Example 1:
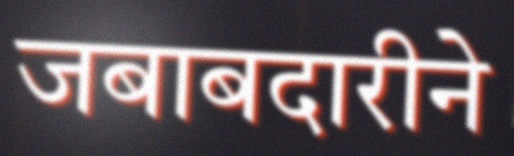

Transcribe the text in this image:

जबाबदारीने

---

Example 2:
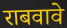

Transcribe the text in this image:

राबवावे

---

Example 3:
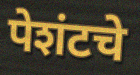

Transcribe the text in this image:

पेशंटचे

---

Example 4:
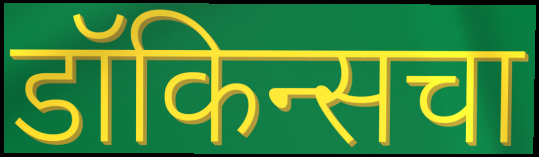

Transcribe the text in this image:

डॉकिन्सचा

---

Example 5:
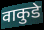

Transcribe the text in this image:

वाकुडे